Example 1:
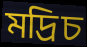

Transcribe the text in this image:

মদ্রিচ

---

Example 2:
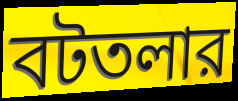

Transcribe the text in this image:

বটতলার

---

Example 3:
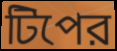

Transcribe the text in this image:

টিপের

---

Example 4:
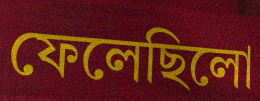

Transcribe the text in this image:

ফেলেছিলো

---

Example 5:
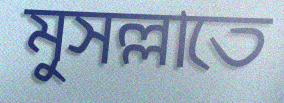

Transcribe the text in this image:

মুসল্লাতে